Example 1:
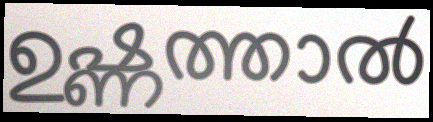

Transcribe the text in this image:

ഉഷ്ണത്താൽ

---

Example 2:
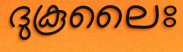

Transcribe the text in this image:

ദുകൂലൈഃ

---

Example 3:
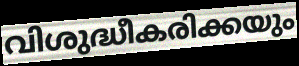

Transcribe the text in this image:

വിശുദ്ധീകരിക്കയും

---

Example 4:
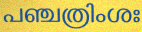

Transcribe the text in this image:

പഞ്ചത്രിംശഃ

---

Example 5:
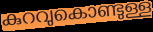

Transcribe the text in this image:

കുറവുകൊണ്ടുള്ള